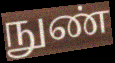
நுண்